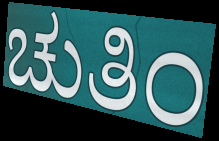
ಚುತಿಂ